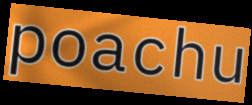
poachu